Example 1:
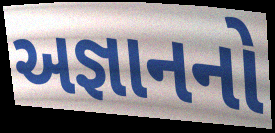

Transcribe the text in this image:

અજ્ઞાનનો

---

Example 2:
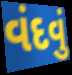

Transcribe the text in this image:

વંદવું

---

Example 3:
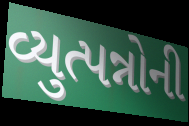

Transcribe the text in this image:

વ્યુત્પન્નોની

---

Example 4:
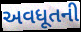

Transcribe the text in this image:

અવધૂતની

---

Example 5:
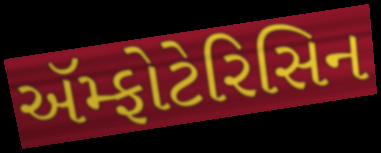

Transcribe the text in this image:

ઍમ્ફોટેરિસિન